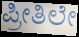
ಪ್ರೀತಿಲೇ